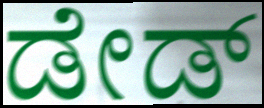
ಡೇಡ್